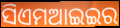
ସିଏମଆଇଇର